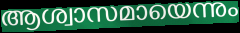
ആശ്വാസമായെന്നും